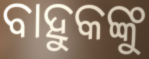
ବାହୁକଙ୍କୁ